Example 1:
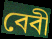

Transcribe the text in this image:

বেবী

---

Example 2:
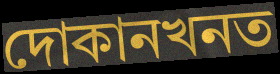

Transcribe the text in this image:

দোকানখনত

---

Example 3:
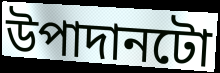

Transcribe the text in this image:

উপাদানটো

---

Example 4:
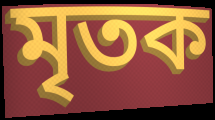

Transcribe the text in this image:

মৃতক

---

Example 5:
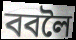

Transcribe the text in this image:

ববলৈ